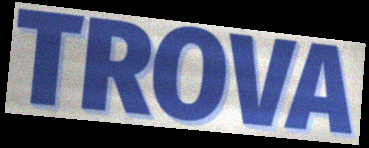
TROVA